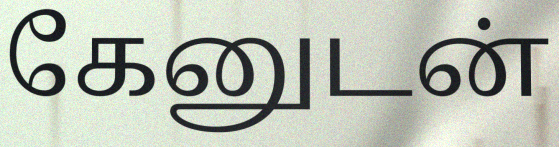
கேனுடன்